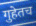
गुहेतच